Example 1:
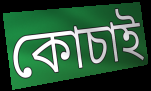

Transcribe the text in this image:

কোচাই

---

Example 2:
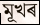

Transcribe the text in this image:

মূখৰ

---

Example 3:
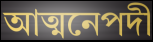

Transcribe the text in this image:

আত্মনেপদী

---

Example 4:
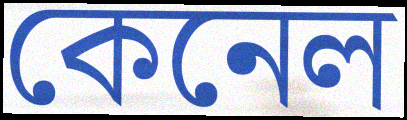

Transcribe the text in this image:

কেনেল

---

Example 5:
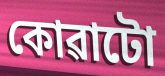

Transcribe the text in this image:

কোৱাটো